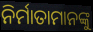
ନିର୍ମାତାମାନଙ୍କୁ